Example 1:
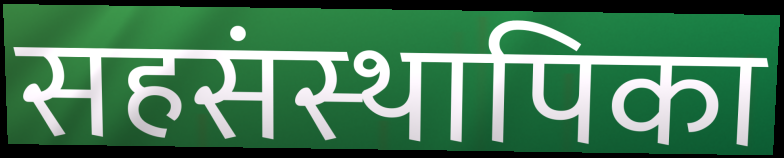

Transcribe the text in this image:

सहसंस्थापिका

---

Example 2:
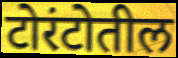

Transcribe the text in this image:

टोरंटोतील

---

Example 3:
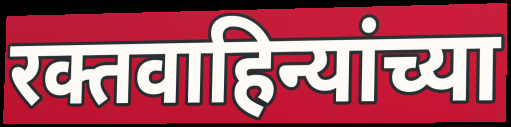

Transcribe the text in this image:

रक्तवाहिन्यांच्या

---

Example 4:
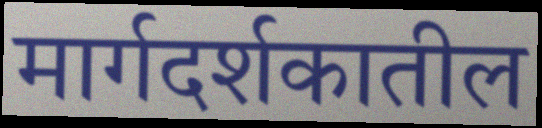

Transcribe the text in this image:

मार्गदर्शकातील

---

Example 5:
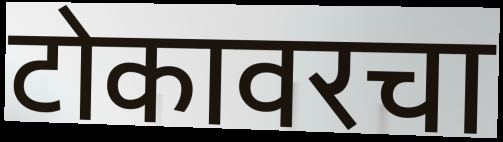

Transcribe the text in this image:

टोकावरचा